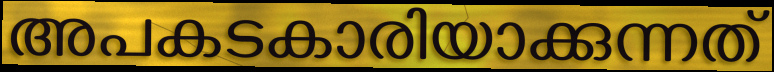
അപകടകാരിയാക്കുന്നത്